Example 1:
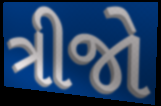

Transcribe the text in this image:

ત્રીજો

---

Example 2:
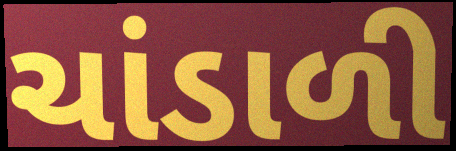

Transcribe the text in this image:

ચાંડાળી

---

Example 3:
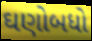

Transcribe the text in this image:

ઘણોબધો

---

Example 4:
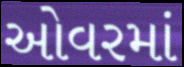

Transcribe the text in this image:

ઓવરમાં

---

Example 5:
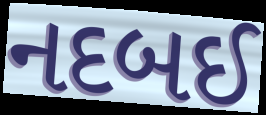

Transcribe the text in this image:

નદબઈ